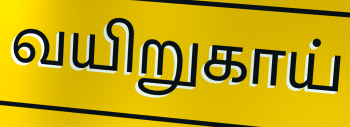
வயிறுகாய்